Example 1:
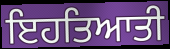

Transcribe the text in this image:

ਇਹਤਿਆਤੀ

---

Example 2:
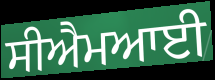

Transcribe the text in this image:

ਸੀਐਮਆਈ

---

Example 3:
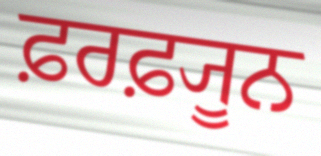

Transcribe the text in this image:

ਫ਼ਰਫ਼੍ਯੂਨ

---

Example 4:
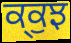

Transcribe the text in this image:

ਕ੍ਕੁਝ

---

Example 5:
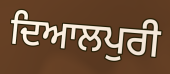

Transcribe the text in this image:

ਦਿਆਲਪੁਰੀ